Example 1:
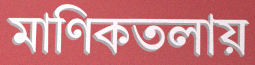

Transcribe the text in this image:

মাণিকতলায়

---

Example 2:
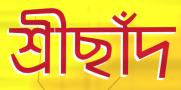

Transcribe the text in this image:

শ্রীছাঁদ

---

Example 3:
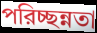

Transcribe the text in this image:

পরিচ্ছন্নতা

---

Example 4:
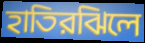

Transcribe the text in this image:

হাতিরঝিলে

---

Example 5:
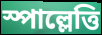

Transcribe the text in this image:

স্পাল্লেত্তি